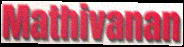
Mathivanan